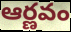
ఆర్ణవం